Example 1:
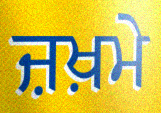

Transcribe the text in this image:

ਜ਼ਖ਼ਮੇ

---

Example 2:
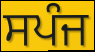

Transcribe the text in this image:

ਸਪੰਜ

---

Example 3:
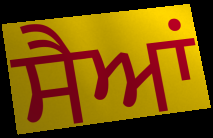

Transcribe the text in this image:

ਸੈਆਂ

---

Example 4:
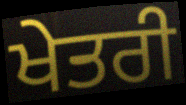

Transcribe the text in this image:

ਖੇਤਰੀ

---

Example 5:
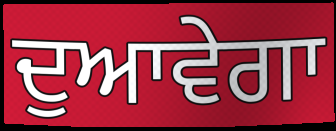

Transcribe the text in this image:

ਦੁਆਵੇਗਾ